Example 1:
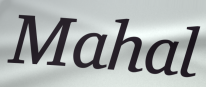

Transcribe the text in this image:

Mahal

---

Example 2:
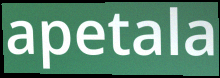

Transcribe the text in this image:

apetala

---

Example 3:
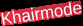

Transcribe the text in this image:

Khairmode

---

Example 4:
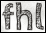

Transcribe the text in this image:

fhl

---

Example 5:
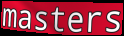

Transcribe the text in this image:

masters